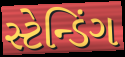
સ્ટેન્ડિંગ